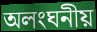
অলংঘনীয়